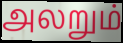
அலறும்